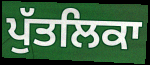
ਪੁੱਤਲਿਕਾ